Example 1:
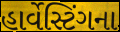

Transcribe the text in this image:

હાર્વેસ્ટિંગના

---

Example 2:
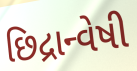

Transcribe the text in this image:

છિદ્રાન્વેષી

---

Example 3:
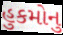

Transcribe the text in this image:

હુકમોનુ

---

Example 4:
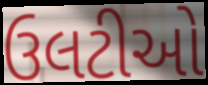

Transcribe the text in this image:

ઉલટીઓ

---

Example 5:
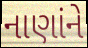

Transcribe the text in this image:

નાણાંને